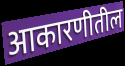
आकारणीतील